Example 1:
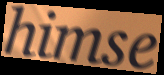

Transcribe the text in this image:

himse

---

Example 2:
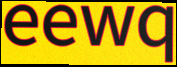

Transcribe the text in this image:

eewq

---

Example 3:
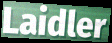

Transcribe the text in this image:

Laidler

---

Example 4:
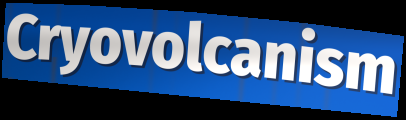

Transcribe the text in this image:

Cryovolcanism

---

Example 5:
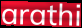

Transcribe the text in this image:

arathi